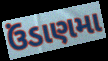
ઉંડાણમા